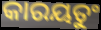
କାରୟତୁଂ